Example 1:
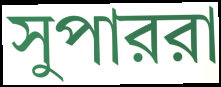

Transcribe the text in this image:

সুপাররা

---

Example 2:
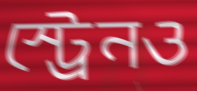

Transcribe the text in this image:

স্ট্রেনও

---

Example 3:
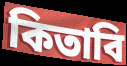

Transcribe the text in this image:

কিতাবি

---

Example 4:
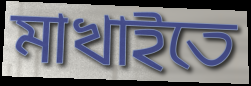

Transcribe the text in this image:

মাখাইতে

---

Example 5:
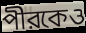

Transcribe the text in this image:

পীরকেও